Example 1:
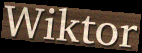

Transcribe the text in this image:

Wiktor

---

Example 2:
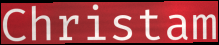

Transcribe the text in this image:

Christam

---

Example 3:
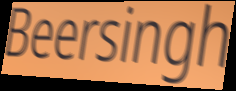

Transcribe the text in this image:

Beersingh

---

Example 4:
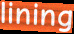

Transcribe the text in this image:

lining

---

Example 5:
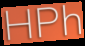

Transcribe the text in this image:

HPh